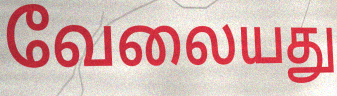
வேலையது